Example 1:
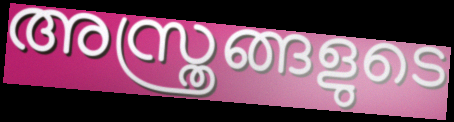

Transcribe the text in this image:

അസ്ത്രങ്ങളുടെ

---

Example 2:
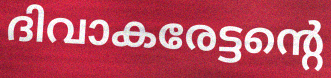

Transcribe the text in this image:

ദിവാകരേട്ടന്റെ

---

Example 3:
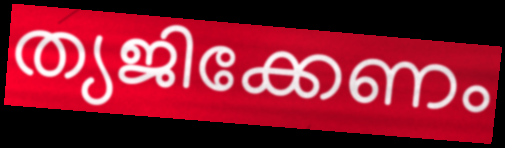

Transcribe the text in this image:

ത്യജിക്കേണം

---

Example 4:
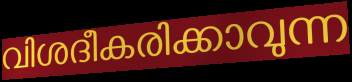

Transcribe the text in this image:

വിശദീകരിക്കാവുന്ന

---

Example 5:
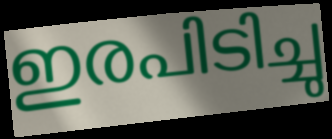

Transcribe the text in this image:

ഇരപിടിച്ചു